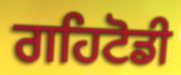
ਗਹਿਟੋਡੀ